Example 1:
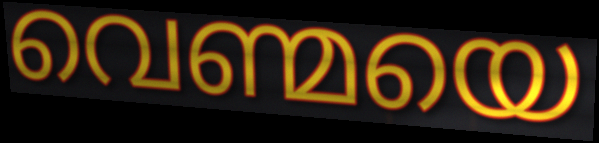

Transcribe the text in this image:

വെണ്മയെ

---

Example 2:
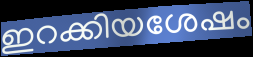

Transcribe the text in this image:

ഇറക്കിയശേഷം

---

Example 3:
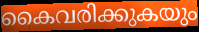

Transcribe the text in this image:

കൈവരിക്കുകയും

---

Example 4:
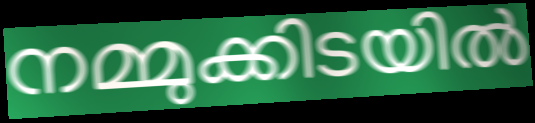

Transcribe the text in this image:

നമ്മുക്കിടയിൽ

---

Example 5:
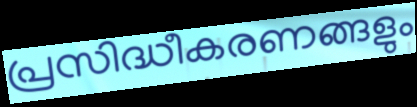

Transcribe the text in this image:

പ്രസിദ്ധീകരണങ്ങളും